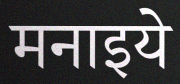
मनाइये